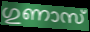
ഗുണാസ്